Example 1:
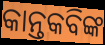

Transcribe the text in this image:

କାନ୍ତକବିଙ୍କ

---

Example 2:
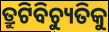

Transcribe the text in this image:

ତ୍ରୁଟିବିଚ୍ୟୁତିକୁ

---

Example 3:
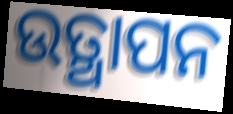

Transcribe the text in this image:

ଉତ୍ଥାପନ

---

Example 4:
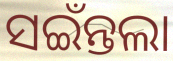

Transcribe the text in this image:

ସଇଁନ୍ତଲା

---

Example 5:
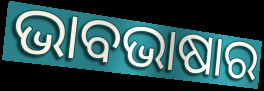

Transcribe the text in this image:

ଭାବଭାଷାର